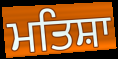
ਮਤਿਸ਼ਾ